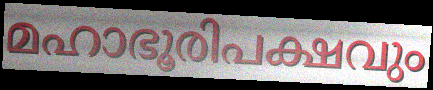
മഹാഭൂരിപക്ഷവും